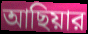
আছিয়ার